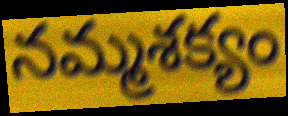
నమ్మశక్యం